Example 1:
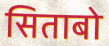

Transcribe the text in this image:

सिताबो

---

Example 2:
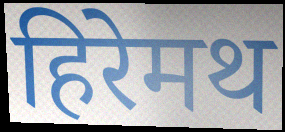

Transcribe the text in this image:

हिरेमथ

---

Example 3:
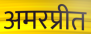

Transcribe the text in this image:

अमरप्रीत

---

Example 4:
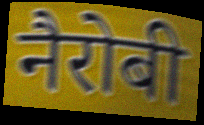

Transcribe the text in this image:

नैरोबी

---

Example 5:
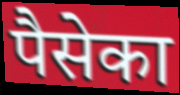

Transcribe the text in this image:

पैसेका